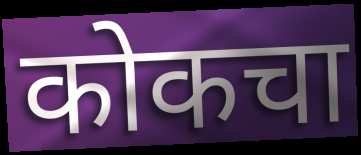
कोकचा